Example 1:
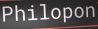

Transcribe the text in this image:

Philopon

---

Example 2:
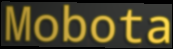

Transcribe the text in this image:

Mobota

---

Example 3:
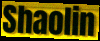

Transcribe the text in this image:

Shaolin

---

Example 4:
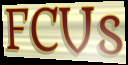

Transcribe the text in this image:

FCUs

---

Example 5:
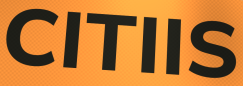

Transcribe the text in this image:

CITIIS